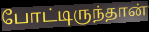
போட்டிருந்தான்